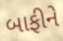
બાફીને